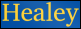
Healey